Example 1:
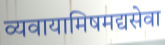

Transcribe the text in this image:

व्यवायामिषमद्यसेवा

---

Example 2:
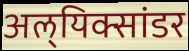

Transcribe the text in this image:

अल्यिक्सांडर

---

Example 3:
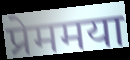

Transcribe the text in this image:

प्रेममया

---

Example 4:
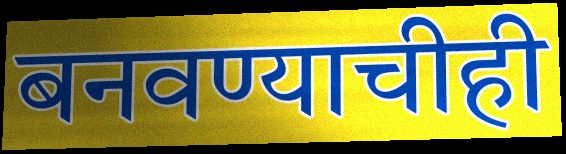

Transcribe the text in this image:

बनवण्याचीही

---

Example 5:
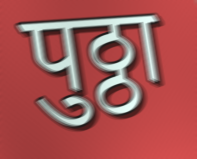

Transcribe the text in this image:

पुठ्ठा